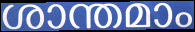
ശാന്തമാം